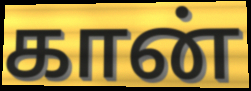
கான்